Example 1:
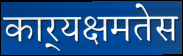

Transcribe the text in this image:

कार्यक्षमतेस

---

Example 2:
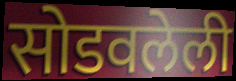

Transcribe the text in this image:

सोडवलेली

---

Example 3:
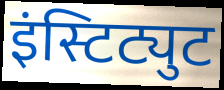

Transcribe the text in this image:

इंस्टिट्युट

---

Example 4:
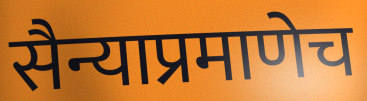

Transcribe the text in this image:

सैन्याप्रमाणेच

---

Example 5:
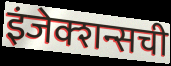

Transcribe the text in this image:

इंजेक्शन्सची